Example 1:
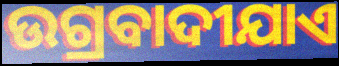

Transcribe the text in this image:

ଉଗ୍ରବାଦୀଯାଏ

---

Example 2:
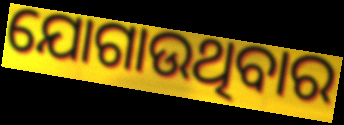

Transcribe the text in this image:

ଯୋଗାଉଥିବାର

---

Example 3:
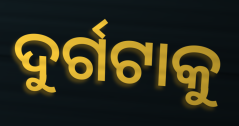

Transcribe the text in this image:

ଦୁର୍ଗଟାକୁ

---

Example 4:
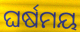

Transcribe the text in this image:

ଘର୍ଷମୟ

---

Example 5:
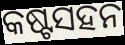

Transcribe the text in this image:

କଷ୍ଟସହନ